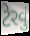
ટેરવું